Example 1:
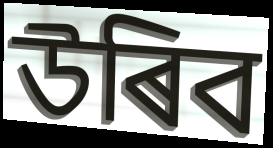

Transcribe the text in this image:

উৰিব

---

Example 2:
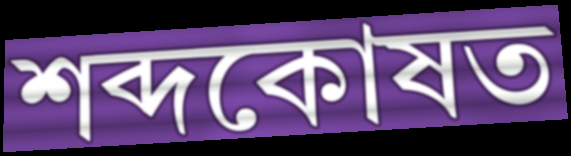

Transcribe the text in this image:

শব্দকোষত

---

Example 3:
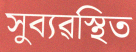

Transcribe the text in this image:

সুব্যৱস্থিত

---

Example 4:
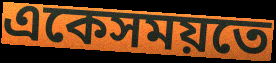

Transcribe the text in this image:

একেসময়তে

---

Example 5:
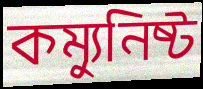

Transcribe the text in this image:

কম্যুনিষ্ট